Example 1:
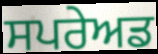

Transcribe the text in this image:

ਸਪਰੇਅਡ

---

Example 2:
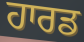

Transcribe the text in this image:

ਹਾਰਡ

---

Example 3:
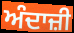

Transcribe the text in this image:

ਅੰਦਾਜ਼ੀ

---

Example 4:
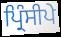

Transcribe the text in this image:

ਪ੍ਰਿੰਸੀਪੇ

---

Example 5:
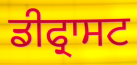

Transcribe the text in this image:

ਡੀਫ੍ਰਾਸਟ